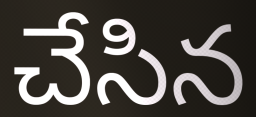
చేసిన